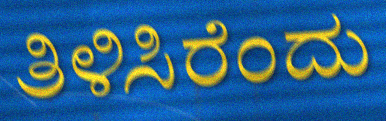
ತಿಳಿಸಿರೆಂದು